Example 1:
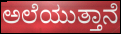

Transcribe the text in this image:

ಅಲೆಯುತ್ತಾನೆ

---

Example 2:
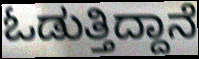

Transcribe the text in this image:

ಓಡುತ್ತಿದ್ದಾನೆ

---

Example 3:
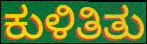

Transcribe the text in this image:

ಕುಳಿತಿತು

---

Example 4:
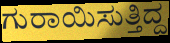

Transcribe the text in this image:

ಗುರಾಯಿಸುತ್ತಿದ್ದ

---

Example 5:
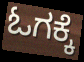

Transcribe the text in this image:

ಓಗಕ್ಕೆ